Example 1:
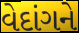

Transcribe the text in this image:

વેદાંગને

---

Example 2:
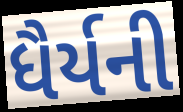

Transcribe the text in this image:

ધૈર્યની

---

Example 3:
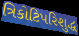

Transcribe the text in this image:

ત્રિકોટિપરિશુદ્ધ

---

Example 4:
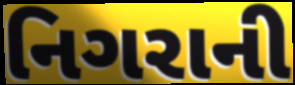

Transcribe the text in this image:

નિગરાની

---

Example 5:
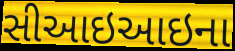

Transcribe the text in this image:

સીઆઇઆઇના